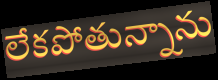
లేకపోతున్నాను